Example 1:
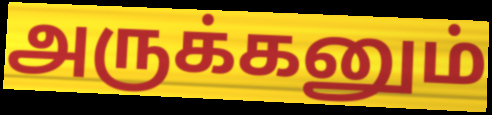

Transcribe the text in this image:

அருக்கனும்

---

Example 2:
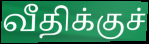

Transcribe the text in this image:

வீதிக்குச்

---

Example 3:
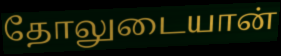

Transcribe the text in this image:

தோலுடையான்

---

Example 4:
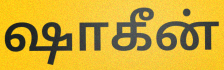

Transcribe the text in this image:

ஷாகீன்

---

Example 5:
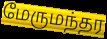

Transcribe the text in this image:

மேருமந்தர